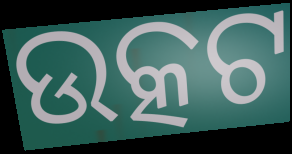
ଉତ୍କଟ